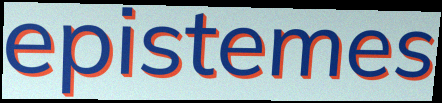
epistemes